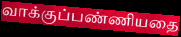
வாக்குப்பண்ணியதை